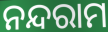
ନନ୍ଦରାମ